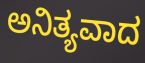
ಅನಿತ್ಯವಾದ